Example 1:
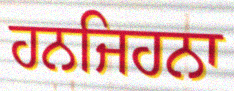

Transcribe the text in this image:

ਹਨਜਿਹਨਾ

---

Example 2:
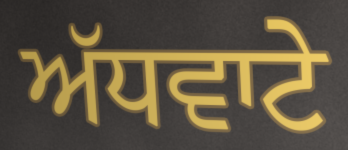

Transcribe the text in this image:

ਅੱਧਵਾਟੇ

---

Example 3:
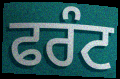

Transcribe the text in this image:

ਫਰੰਟ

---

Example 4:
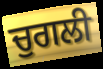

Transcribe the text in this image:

ਚੁਗਲੀ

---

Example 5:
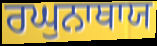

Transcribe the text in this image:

ਰਘੁਨਾਥਾਯ